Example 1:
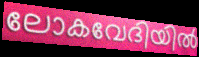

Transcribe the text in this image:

ലോകവേദിയിൽ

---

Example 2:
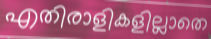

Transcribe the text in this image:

എതിരാളികളില്ലാതെ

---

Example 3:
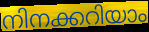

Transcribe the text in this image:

നിനക്കറിയാം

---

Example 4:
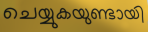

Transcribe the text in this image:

ചെയ്യുകയുണ്ടായി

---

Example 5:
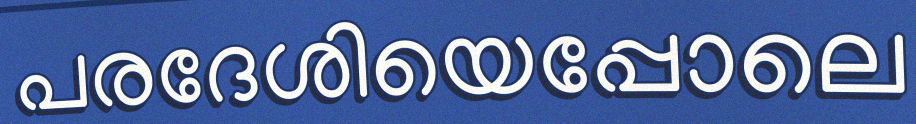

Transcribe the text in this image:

പരദേശിയെപ്പോലെ